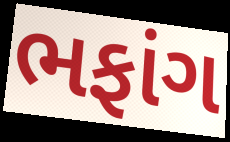
ભફાંગ